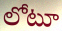
లోటూ